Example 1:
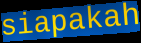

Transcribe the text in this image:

siapakah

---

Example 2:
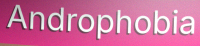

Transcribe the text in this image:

Androphobia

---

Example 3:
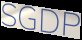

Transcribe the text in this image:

SGDP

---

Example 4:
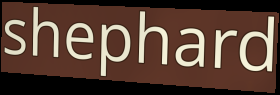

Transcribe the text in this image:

shephard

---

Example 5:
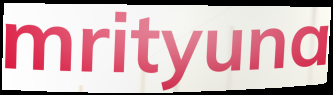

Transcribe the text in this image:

mrityuna